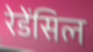
रेडेंसिल